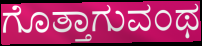
ಗೊತ್ತಾಗುವಂಥ